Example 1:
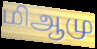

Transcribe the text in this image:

மிஆமு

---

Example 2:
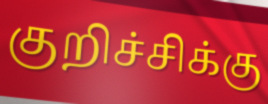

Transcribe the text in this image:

குறிச்சிக்கு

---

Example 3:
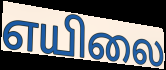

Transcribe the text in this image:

எயிலை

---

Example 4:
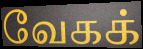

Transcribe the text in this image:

வேகக்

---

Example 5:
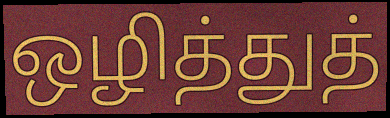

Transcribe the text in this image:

ஒழித்துத்